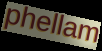
phellam